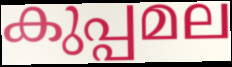
കുപ്പമല